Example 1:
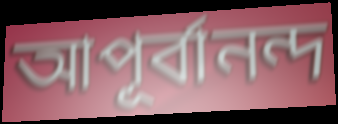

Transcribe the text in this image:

আপূর্বানন্দ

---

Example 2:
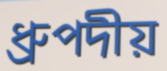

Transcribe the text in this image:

ধ্রুপদীয়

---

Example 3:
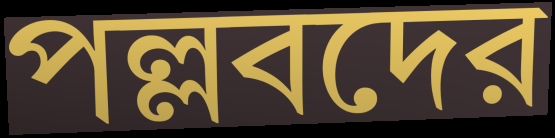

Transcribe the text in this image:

পল্লবদের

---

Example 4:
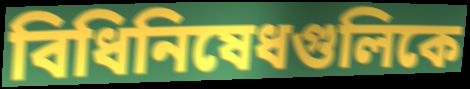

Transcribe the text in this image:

বিধিনিষেধগুলিকে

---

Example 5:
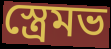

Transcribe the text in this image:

স্ত্রেমভ